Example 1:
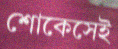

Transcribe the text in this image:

শোকেসেই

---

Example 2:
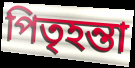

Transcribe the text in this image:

পিতৃহন্তা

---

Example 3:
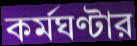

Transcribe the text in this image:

কর্মঘণ্টার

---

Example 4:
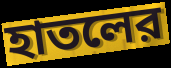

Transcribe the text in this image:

হাতলের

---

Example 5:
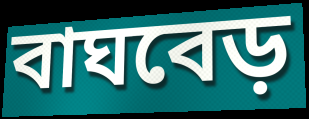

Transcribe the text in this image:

বাঘবেড়